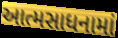
આત્મસાધનામાં